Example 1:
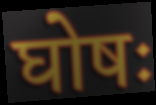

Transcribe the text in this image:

घोषः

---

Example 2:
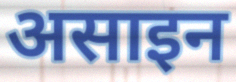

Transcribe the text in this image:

असाइन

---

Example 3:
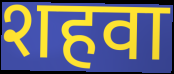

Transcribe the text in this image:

शहवा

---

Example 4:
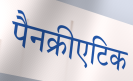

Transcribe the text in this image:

पैनक्रीएटिक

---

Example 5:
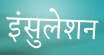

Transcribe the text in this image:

इंसुलेशन